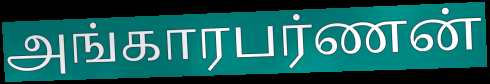
அங்காரபர்ணன்